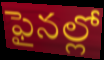
ఫైనల్లో